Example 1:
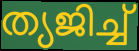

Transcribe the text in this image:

ത്യജിച്ച്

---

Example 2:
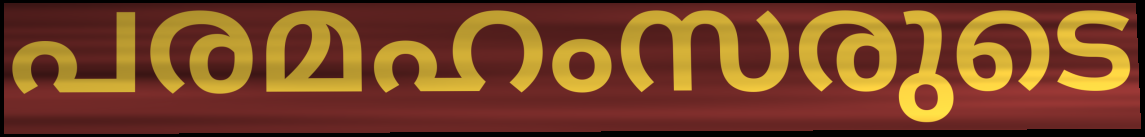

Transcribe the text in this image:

പരമഹംസരുടെ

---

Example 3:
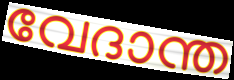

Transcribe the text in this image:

വേദാന്ത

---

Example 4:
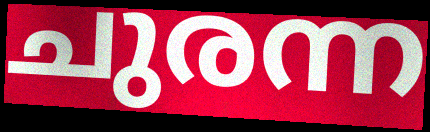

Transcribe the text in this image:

ചുരന്ന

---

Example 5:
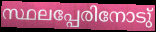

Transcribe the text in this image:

സ്ഥലപ്പേരിനോടു്